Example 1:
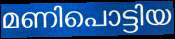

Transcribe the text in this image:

മണിപൊട്ടിയ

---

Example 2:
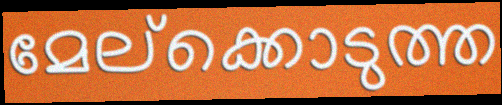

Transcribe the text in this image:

മേല്ക്കൊടുത്ത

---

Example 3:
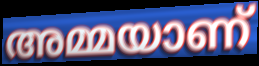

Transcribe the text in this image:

അമ്മയാണ്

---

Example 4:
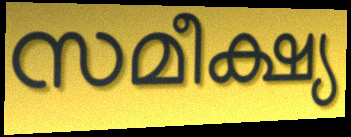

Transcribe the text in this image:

സമീക്ഷ്യ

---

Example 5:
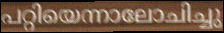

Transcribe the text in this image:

പറ്റിയെന്നാലോചിച്ചു